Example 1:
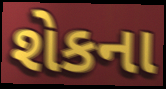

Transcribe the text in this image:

શેકના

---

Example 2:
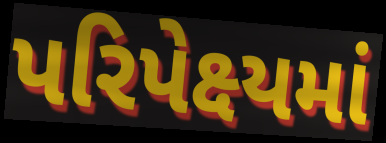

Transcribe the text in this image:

પરિપેક્ષ્યમાં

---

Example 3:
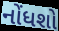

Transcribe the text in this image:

નોંધશો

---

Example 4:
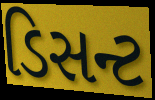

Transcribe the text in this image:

ડિસન્ટ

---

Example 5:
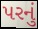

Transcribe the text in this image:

પરનું